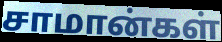
சாமான்கள்